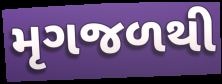
મૃગજળથી